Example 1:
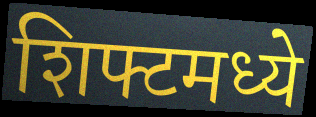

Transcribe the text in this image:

शिफ्टमध्ये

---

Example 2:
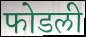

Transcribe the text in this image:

फोडली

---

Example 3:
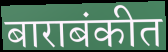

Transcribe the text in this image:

बाराबंकीत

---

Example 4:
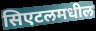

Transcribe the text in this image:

सिएटलमधील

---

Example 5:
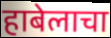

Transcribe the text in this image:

हाबेलाचा